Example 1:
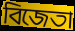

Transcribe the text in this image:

বিজেতা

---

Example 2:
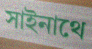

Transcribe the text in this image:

সাইনাথে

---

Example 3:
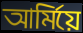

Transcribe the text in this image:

আৰ্মিয়ে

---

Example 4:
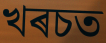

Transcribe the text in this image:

খৰচত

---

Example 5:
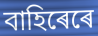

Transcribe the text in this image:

বাহিৰেৰে